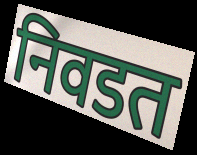
निवडत